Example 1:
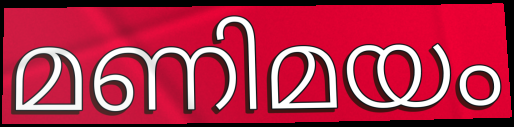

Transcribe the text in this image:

മണിമയം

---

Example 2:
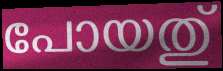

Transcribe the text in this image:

പോയതു്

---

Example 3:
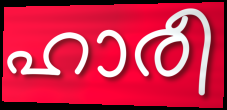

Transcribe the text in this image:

ഹാരീ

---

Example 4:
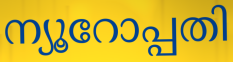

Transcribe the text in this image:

ന്യൂറോപ്പതി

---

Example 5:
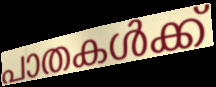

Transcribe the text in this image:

പാതകൾക്ക്